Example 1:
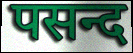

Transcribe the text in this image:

पसन्द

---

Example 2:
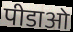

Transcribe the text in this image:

पीडाओ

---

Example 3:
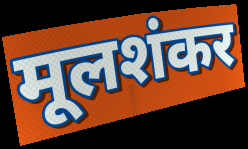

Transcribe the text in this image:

मूलशंकर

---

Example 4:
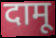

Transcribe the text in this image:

दामू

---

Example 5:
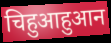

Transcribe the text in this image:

चिहुआहुआन